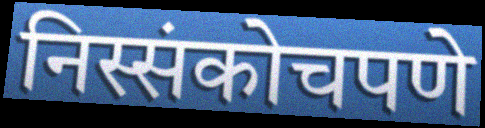
निस्संकोचपणे